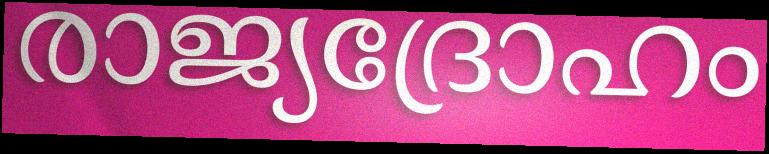
രാജ്യദ്രോഹം